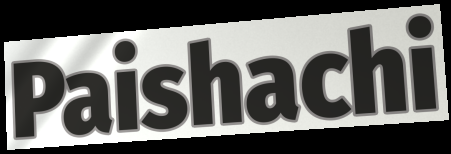
Paishachi